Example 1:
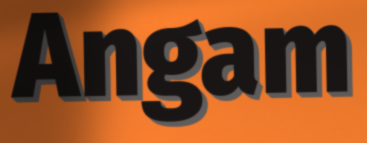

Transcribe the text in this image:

Angam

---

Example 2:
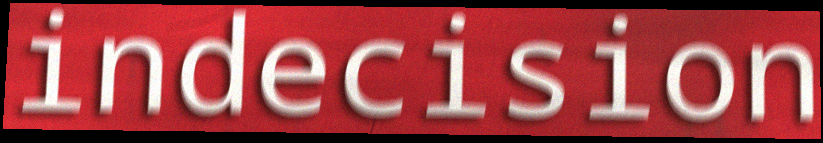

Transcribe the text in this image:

indecision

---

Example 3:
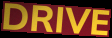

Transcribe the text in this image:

DRIVE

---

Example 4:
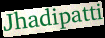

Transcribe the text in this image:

Jhadipatti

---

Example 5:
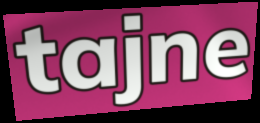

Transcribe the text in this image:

tajne